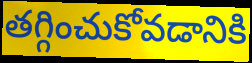
తగ్గించుకోవడానికి